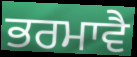
ਭਰਮਾਵੈ